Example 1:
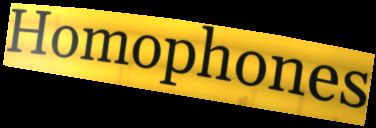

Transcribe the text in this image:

Homophones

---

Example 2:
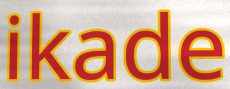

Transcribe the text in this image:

ikade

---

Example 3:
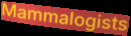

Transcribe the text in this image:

Mammalogists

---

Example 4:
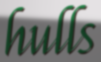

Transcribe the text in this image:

hulls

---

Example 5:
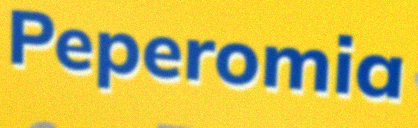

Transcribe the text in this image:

Peperomia